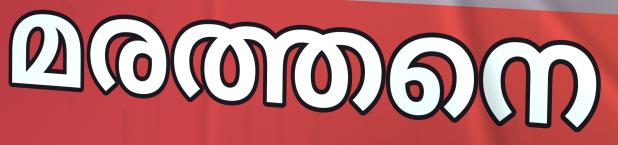
മരത്തനെ